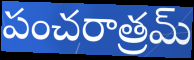
పంచరాత్రమ్